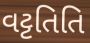
વટ્ટતિતિ